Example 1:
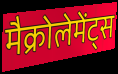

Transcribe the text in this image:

मैक्रोलेमेंट्स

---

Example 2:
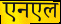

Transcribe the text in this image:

एनएल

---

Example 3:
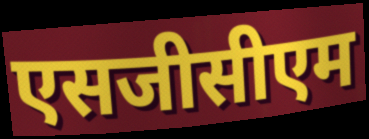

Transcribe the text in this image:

एसजीसीएम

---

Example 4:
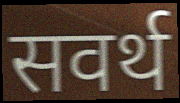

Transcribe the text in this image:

सवर्थ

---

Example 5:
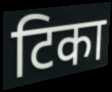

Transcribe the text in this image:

टिका